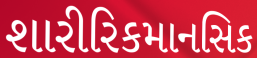
શારીરિકમાનસિક